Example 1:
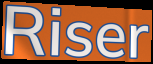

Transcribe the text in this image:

Riser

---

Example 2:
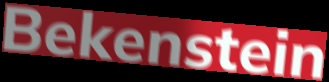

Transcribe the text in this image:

Bekenstein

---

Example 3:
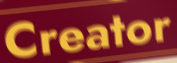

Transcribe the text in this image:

Creator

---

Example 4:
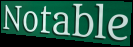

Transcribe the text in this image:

Notable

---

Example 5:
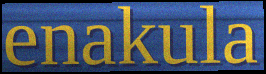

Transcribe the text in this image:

enakula